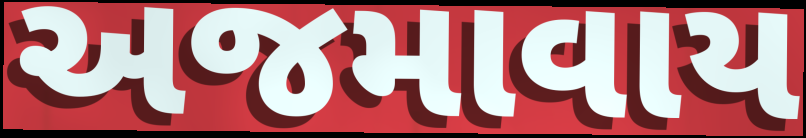
અજમાવાય